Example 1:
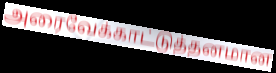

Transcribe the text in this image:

அரைவேக்காட்டுத்தனமான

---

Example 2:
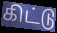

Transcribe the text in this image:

கிட்டு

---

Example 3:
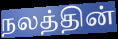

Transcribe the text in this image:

நலத்தின்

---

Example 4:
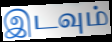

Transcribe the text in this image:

இடவும்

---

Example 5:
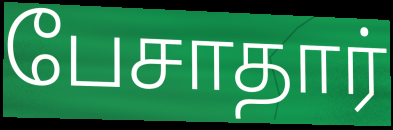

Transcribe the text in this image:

பேசாதார்